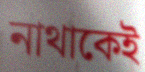
নাথাকেই